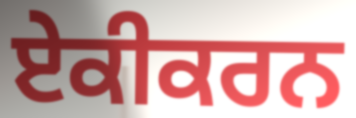
ਏਕੀਕਰਨ